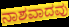
ನಾಶವಾದವು